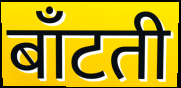
बाँटती